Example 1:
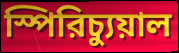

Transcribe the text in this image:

স্পিরিচ্যুয়াল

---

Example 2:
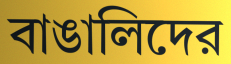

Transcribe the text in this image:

বাঙালিদের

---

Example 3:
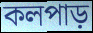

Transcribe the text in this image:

কলপাড়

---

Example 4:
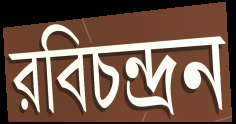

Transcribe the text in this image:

রবিচন্দ্রন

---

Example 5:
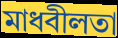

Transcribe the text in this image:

মাধবীলতা